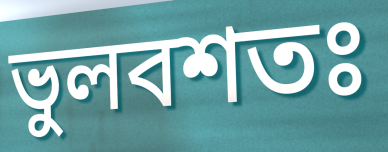
ভুলবশতঃ